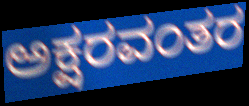
ಅಕ್ಷರವಂತರ